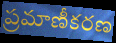
ప్రమాణీకరణ